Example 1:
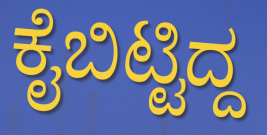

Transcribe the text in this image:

ಕೈಬಿಟ್ಟಿದ್ದ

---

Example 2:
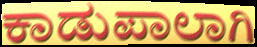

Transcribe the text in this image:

ಕಾಡುಪಾಲಾಗಿ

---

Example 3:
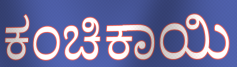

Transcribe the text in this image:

ಕಂಚಿಕಾಯಿ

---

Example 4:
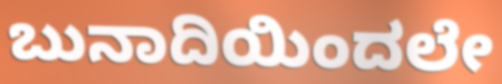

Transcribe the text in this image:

ಬುನಾದಿಯಿಂದಲೇ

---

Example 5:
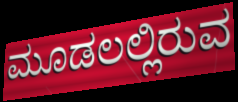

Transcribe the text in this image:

ಮೂಡಲಲ್ಲಿರುವ